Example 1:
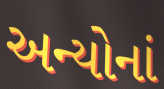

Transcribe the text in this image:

અન્યોનાં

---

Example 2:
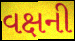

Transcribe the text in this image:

વક્ષની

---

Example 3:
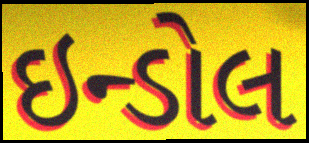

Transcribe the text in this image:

ઇન્ડોલ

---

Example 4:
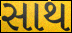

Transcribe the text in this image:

સાથ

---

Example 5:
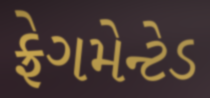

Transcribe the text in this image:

ફ્રેગમેન્ટેડ